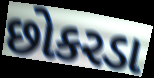
છોકરડા